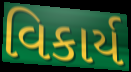
વિકાર્ય